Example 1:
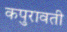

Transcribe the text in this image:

कपुरावती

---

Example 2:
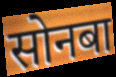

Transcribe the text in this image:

सोनबा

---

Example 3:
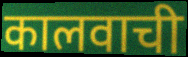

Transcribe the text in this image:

कालवाची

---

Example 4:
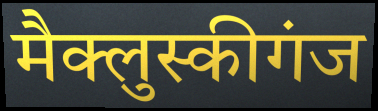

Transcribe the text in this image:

मैक्लुस्कीगंज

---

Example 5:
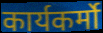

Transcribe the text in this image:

कार्यकर्मो